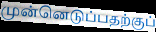
முன்னெடுப்பதற்குப்